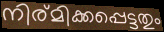
നിര്മിക്കപ്പെട്ടതും